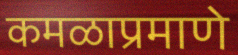
कमळाप्रमाणे